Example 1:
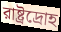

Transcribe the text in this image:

রাষ্ট্রদ্রোহ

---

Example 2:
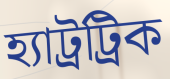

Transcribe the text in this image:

হ্যাট্রট্রিক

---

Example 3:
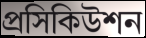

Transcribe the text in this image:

প্রসিকিউশন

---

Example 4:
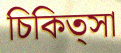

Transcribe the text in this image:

চিকিত্সা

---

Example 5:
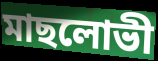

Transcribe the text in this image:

মাছলোভী